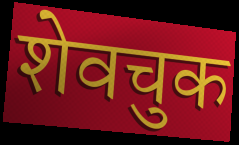
शेवचुक